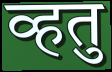
व्हतु